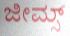
ಜೀಮ್ಸ್